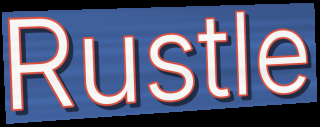
Rustle